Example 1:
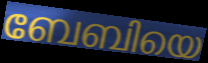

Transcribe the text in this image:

ബേബിയെ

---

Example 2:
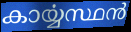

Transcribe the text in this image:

കാൎയ്യസ്ഥൻ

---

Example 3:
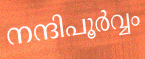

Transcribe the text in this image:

നന്ദിപൂർവ്വം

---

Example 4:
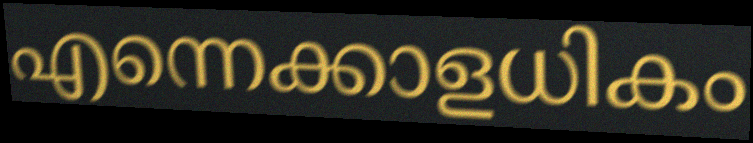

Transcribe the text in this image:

എന്നെക്കാളധികം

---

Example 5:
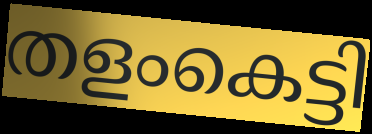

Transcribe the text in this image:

തളംകെട്ടി